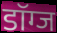
डॉग्ज